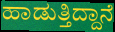
ಹಾಡುತ್ತಿದ್ದಾನೆ